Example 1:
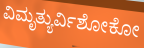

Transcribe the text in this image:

ವಿಮೃತ್ಯುರ್ವಿಶೋಕೋ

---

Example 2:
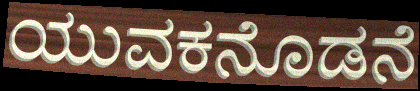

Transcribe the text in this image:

ಯುವಕನೊಡನೆ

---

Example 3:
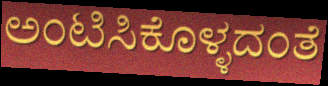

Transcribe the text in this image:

ಅಂಟಿಸಿಕೊಳ್ಳದಂತೆ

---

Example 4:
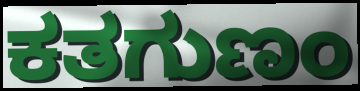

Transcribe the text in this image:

ಕತಗುಣಂ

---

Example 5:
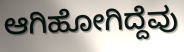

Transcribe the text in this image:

ಆಗಿಹೋಗಿದ್ದೆವು